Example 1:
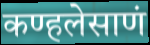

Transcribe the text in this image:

कण्हलेसाणं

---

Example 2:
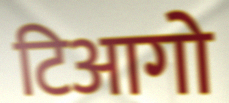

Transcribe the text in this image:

टिआगो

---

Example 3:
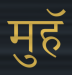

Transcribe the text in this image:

मुहॅ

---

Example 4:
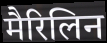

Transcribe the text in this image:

मैरिलिन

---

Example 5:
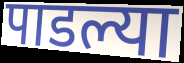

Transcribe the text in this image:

पाडल्या